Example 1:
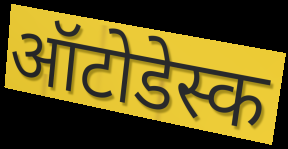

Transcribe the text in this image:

ऑटोडेस्क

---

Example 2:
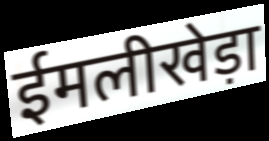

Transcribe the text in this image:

ईमलीखेड़ा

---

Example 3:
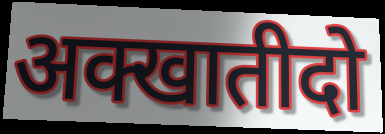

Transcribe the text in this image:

अक्खातीदो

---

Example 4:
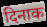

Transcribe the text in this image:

दिनाक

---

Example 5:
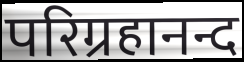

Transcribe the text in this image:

परिग्रहानन्द